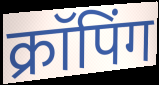
क्रॉपिंग